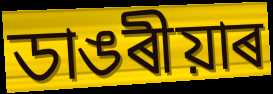
ডাঙৰীয়াৰ